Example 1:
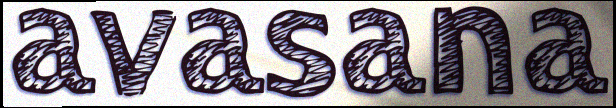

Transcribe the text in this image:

avasana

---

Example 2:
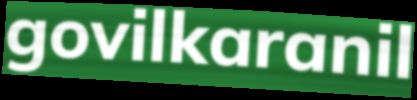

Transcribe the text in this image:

govilkaranil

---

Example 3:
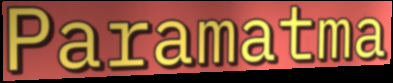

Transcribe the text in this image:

Paramatma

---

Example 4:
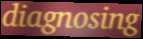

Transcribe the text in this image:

diagnosing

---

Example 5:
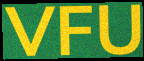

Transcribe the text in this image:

VFU